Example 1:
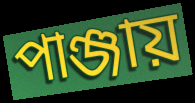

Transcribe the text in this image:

পাঞ্জায়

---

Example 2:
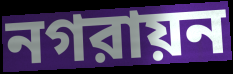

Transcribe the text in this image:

নগরায়ন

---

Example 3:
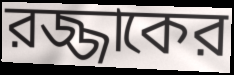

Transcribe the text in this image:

রজ্জাকের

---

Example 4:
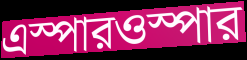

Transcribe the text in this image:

এস্পারওস্পার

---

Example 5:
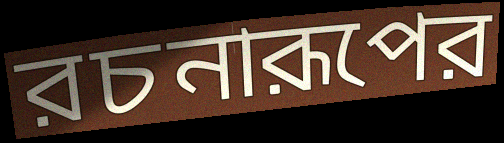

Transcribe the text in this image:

রচনারূপের